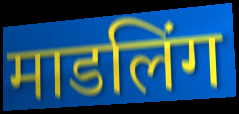
माडलिंग